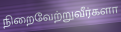
நிறைவேற்றுவீர்களா